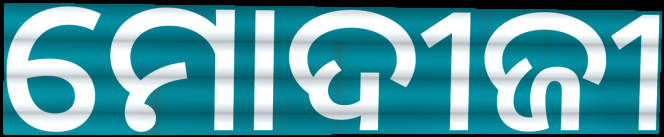
ମୋଦୀଜୀ